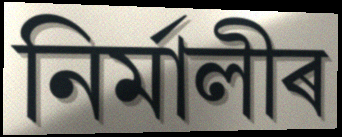
নিৰ্মালীৰ